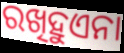
ରଖିହୁଏନା